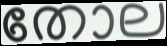
തോല